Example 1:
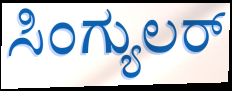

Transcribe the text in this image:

ಸಿಂಗ್ಯುಲರ್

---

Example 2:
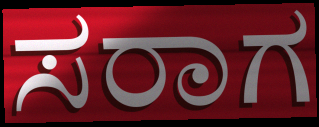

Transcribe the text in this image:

ಸರಾಗ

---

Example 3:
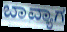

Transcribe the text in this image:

ಬಾವ್ಯಾಗ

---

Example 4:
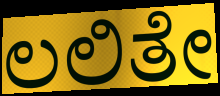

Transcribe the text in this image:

ಲಲಿತೇ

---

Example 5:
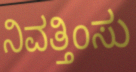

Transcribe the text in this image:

ನಿವತ್ತಿಂಸು